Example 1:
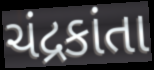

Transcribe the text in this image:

ચંદ્રકાંતા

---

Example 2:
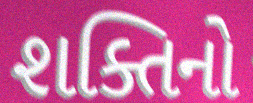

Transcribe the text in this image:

શક્તિનો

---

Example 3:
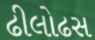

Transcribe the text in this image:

ઢીલોઢસ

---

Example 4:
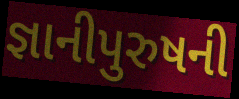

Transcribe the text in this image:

જ્ઞાનીપુરુષની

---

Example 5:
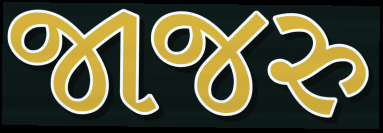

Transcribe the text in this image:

જાજરુ